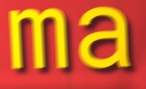
ma